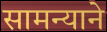
सामन्याने